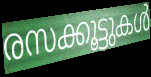
രസക്കൂട്ടുകൾ